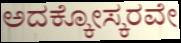
ಅದಕ್ಕೋಸ್ಕರವೇ